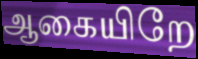
ஆகையிறே